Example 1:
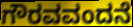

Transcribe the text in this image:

ಗೌರವವಂದನೆ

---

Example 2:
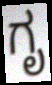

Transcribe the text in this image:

ಗೃ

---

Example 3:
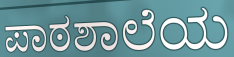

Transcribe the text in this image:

ಪಾಠಶಾಲೆಯ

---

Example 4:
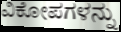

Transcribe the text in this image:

ವಿಕೋಪಗಳನ್ನು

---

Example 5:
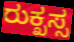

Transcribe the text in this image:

ರುಕ್ಖಸ್ಸ